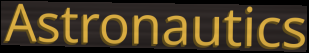
Astronautics